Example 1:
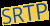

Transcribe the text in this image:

SRTP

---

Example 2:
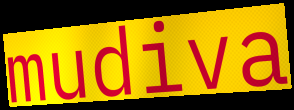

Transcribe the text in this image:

mudiva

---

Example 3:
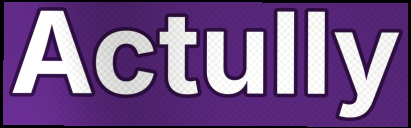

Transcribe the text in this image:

Actully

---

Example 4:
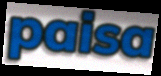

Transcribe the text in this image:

paisa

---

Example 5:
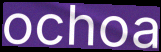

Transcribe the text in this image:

ochoa